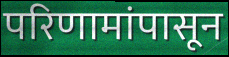
परिणामांपासून